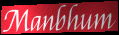
Manbhum